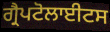
ਗ੍ਰੈਪਟੋਲਾਈਟਸ